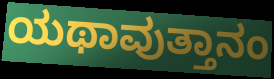
ಯಥಾವುತ್ತಾನಂ